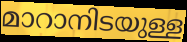
മാറാനിടയുള്ള